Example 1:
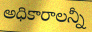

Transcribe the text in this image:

అధికారాలన్నీ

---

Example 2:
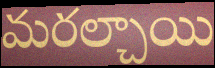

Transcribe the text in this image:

మరల్చాయి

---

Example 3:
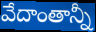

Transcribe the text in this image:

వేదాంతాన్నీ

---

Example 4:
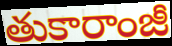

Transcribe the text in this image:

తుకారాంజీ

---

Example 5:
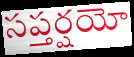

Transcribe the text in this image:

సప్తర్షయో